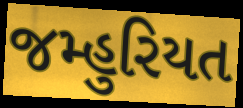
જમ્હુરિયત